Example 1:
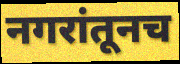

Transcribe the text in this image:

नगरांतूनच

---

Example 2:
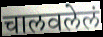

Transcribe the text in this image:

चालवलेलं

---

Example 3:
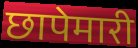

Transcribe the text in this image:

छापेमारी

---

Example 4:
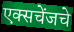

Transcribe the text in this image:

एक्सचेंजचे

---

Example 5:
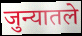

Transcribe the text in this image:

जुन्यातले